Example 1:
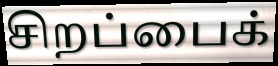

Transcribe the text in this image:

சிறப்பைக்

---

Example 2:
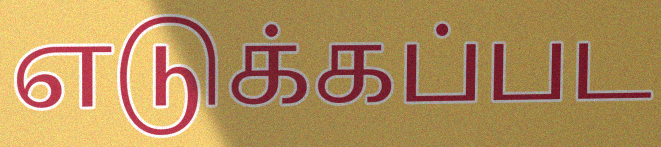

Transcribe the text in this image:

எடுக்கப்பட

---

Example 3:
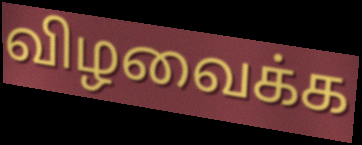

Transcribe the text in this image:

விழவைக்க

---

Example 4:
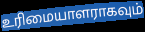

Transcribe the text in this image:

உரிமையாளராகவும்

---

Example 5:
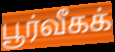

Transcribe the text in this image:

பூர்வீகக்